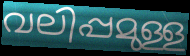
വലിപ്പമുള്ള